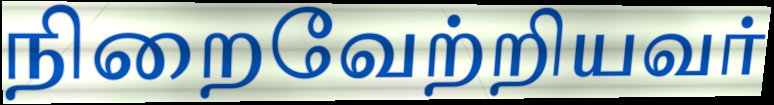
நிறைவேற்றியவர்